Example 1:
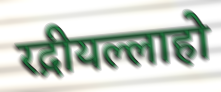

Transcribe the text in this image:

रद़ीयल्लाहो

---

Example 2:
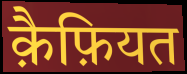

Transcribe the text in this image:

क़ैफ़ियत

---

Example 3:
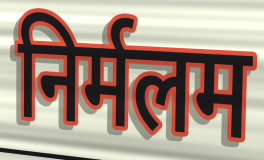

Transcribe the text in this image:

निर्मलम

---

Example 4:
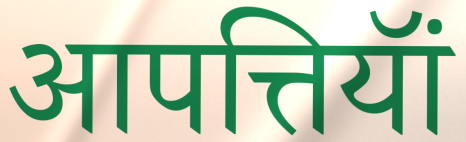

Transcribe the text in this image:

आपत्तियॉं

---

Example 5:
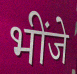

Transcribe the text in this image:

भींजे